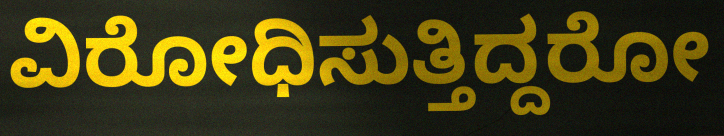
ವಿರೋಧಿಸುತ್ತಿದ್ದರೋ